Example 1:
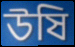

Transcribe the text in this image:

উষি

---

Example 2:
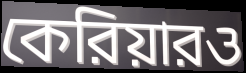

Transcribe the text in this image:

কেরিয়ারও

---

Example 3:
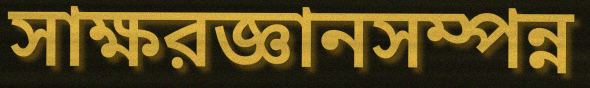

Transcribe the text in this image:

সাক্ষরজ্ঞানসম্পন্ন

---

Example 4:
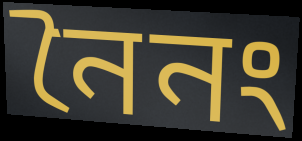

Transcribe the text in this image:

নৈনং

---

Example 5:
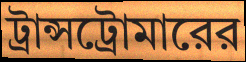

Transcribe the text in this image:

ট্রান্সট্রোমারের